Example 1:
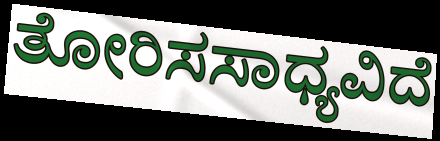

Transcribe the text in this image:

ತೋರಿಸಸಾಧ್ಯವಿದೆ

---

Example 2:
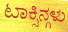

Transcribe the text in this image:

ಟಾಕ್ಸಿನ್ಗಳು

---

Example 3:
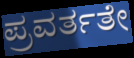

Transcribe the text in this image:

ಪ್ರವರ್ತತೇ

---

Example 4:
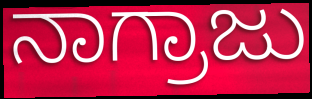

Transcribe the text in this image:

ನಾಗ್ರಾಜು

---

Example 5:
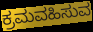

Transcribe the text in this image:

ಕ್ರಮವಹಿಸುವ